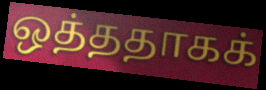
ஒத்ததாகக்